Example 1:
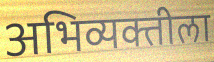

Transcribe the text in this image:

अभिव्यक्तीला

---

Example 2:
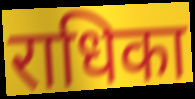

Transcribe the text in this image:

राधिका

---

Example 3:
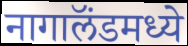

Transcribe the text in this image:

नागालॅंडमध्ये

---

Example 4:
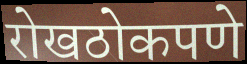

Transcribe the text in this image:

रोखठोकपणे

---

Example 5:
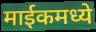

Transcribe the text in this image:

माईकमध्ये